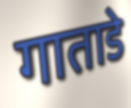
गाताडे